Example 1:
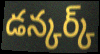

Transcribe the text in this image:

డన్కర్క్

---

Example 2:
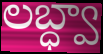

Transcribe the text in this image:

లబ్ధ్వా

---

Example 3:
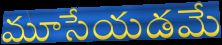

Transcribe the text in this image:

మూసేయడమే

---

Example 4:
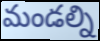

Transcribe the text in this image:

మండల్ని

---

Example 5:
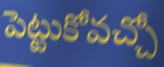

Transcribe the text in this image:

పెట్టుకోవచ్చో